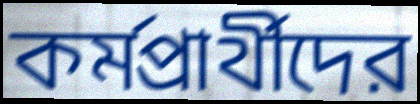
কর্মপ্রার্থীদের